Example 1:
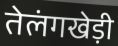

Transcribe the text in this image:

तेलंगखेड़ी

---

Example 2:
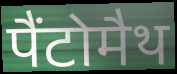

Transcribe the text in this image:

पैंटोमैथ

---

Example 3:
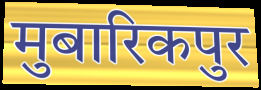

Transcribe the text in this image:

मुबारिकपुर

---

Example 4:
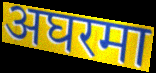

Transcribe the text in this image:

अघरमा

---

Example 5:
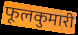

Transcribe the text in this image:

फूलकुमारी